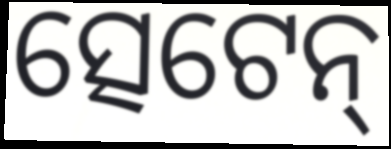
ତ୍ସେଟେନ୍